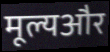
मूल्यऔर